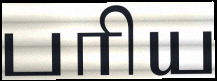
பரிய